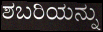
ಶಬರಿಯನ್ನು